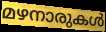
മഴനാരുകൾ